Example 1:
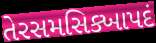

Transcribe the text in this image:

તેરસમસિક્ખાપદં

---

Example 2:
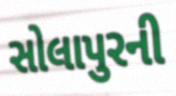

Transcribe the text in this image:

સોલાપુરની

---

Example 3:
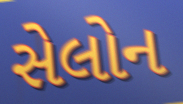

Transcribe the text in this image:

સેલોન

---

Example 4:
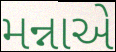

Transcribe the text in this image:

મન્નાએ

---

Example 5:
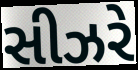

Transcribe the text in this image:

સીઝરે